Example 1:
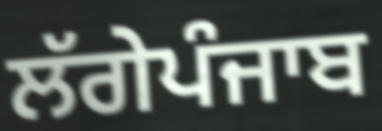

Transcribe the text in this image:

ਲੱਗੇਪੰਜਾਬ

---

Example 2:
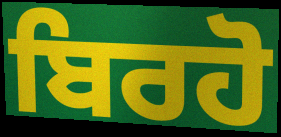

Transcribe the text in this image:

ਬਿਰਹੋ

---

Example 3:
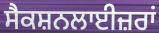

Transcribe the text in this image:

ਸੈਕਸ਼ਨਲਾਈਜ਼ਰਾਂ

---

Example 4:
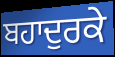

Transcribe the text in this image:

ਬਹਾਦੁਰਕੇ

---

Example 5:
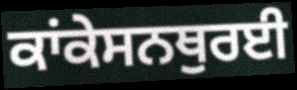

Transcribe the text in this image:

ਕਾਂਕੇਸਨਥੁਰਈ